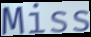
Miss